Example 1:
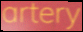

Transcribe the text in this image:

artery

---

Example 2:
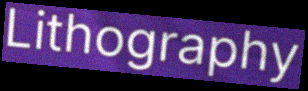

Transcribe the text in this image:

Lithography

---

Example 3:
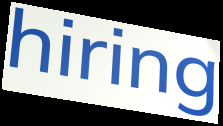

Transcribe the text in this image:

hiring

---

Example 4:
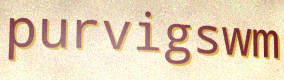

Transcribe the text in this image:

purvigswm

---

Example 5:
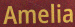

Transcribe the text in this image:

Amelia